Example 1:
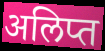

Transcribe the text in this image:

अलिप्त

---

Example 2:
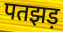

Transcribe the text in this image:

पतझड़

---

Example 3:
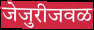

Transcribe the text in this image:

जेजुरीजवळ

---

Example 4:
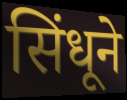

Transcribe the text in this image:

सिंधूने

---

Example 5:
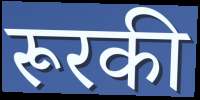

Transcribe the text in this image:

रूरकी